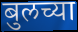
बुलच्या